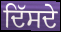
ਦਿੱਸਦੇ